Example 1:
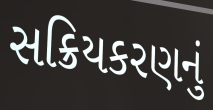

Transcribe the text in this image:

સક્રિયકરણનું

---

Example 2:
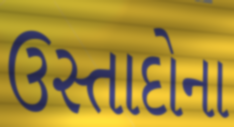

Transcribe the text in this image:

ઉસ્તાદોના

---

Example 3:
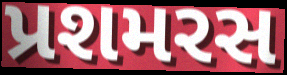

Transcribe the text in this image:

પ્રશમરસ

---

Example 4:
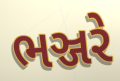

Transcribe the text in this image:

ભઞ્જરે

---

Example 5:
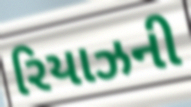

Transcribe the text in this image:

રિયાઝની